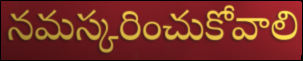
నమస్కరించుకోవాలి